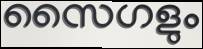
സൈഗളും